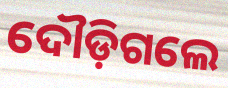
ଦୌଡ଼ିଗଲେ